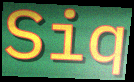
Siq